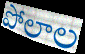
పోలాల